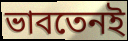
ভাবতেনই